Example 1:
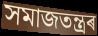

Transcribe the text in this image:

সমাজতন্ত্ৰৰ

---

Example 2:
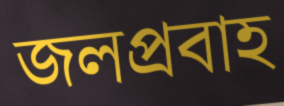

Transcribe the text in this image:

জলপ্ৰবাহ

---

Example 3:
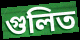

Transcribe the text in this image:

গুলিত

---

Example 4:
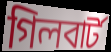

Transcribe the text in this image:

গিলবাৰ্ট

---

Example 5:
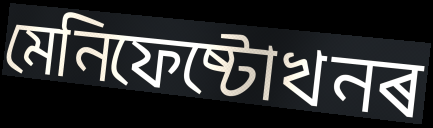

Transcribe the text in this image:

মেনিফেষ্টোখনৰ